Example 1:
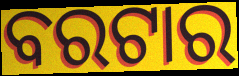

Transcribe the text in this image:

ବରଟାର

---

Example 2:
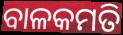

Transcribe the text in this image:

ବାଳକମତି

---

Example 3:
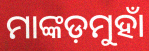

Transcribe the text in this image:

ମାଙ୍କଡ଼ମୁହାଁ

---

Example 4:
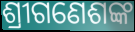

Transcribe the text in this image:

ଶ୍ରୀଗଣେଶଙ୍କ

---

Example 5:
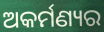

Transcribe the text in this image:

ଅକର୍ମଣ୍ୟର